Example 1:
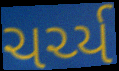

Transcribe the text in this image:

ચર્ચ્ય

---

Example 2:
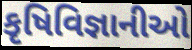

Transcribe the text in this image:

કૃષિવિજ્ઞાનીઓ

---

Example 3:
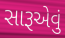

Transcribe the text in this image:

સારૂએવું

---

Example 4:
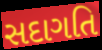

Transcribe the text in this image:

સદાગતિ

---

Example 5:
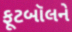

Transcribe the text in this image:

ફૂટબૉલને